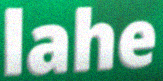
lahe